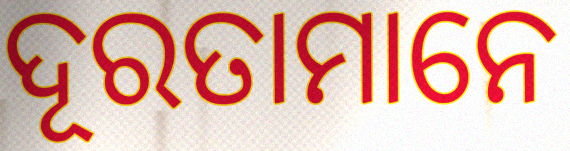
ଦୂରତାମାନେ